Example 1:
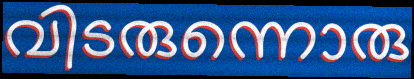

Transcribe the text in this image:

വിടരുന്നൊരു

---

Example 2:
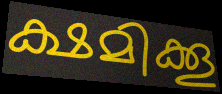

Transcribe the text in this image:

ക്ഷമിക്കൂ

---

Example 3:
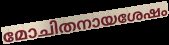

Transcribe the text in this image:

മോചിതനായശേഷം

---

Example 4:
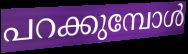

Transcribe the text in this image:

പറക്കുമ്പോൾ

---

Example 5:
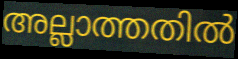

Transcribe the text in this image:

അല്ലാത്തതിൽ